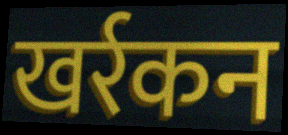
खर्रकन